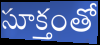
సూక్తంతో